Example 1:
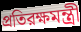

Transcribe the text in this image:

প্রতিরক্ষমন্ত্রী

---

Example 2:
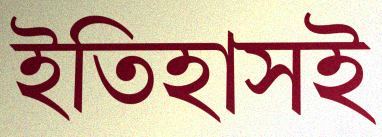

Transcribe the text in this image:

ইতিহাসই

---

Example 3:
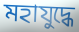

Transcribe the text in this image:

মহাযুদ্ধে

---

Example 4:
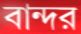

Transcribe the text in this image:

বান্দর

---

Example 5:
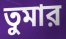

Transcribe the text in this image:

তুমার